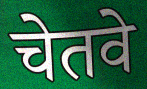
चेतवे